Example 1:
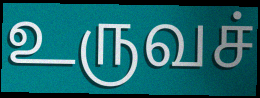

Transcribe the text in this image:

உருவச்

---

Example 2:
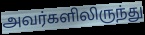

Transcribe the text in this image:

அவர்களிலிருந்து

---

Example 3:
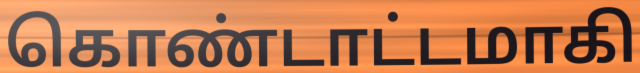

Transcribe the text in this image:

கொண்டாட்டமாகி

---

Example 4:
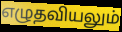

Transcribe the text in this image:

எழுதவியலும்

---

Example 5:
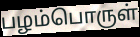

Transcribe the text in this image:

பழம்பொருள்